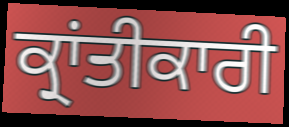
ਕ੍ਰਾਂਤੀਕਾਰੀ